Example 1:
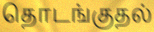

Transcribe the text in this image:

தொடங்குதல்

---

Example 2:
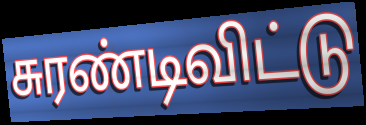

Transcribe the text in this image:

சுரண்டிவிட்டு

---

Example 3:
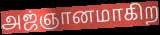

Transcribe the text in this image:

அஜ்ஞானமாகிற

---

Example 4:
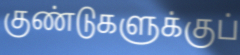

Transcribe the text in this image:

குண்டுகளுக்குப்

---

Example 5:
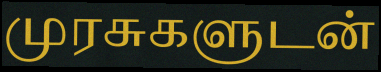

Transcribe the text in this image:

முரசுகளுடன்